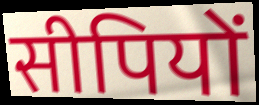
सीपियों